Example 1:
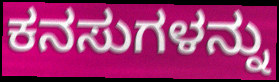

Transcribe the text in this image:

ಕನಸುಗಳನ್ನು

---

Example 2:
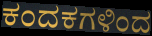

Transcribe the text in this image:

ಕಂದಕಗಳಿಂದ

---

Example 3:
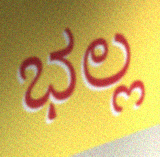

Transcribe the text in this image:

ಭಲ್ಲ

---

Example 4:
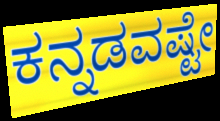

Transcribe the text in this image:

ಕನ್ನಡವಷ್ಟೇ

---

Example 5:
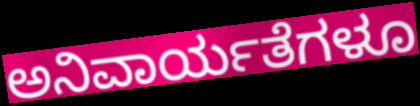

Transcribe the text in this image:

ಅನಿವಾರ್ಯತೆಗಳೂ